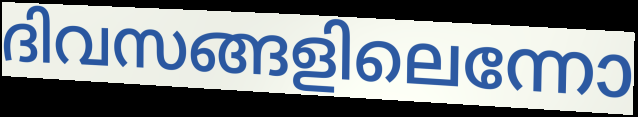
ദിവസങ്ങളിലെന്നോ